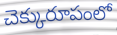
చెక్కురూపంలో